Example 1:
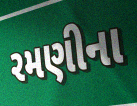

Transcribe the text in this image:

રમણીના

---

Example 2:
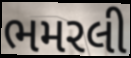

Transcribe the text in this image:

ભમરલી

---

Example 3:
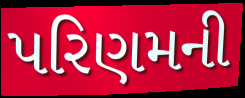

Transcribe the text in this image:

પરિણમની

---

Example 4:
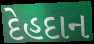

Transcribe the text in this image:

દેહદાન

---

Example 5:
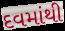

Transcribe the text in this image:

દવમાંથી